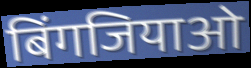
बिंगजियाओ